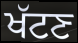
ਖੱਟਣ